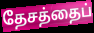
தேசத்தைப்